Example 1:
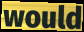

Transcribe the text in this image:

would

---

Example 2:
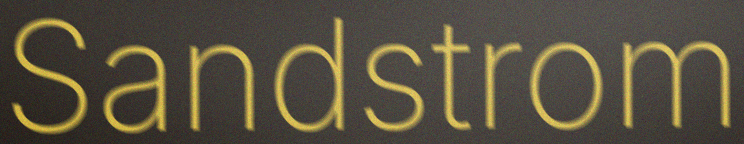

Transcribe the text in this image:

Sandstrom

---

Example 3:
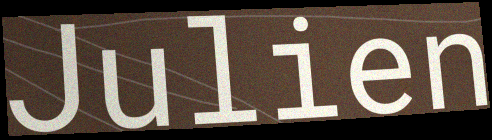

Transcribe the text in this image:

Julien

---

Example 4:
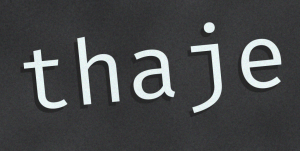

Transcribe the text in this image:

thaje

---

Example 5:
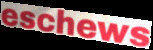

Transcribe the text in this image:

eschews